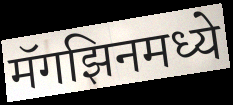
मॅगझिनमध्ये